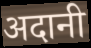
अदानी